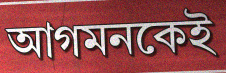
আগমনকেই